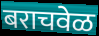
बराचवेळ